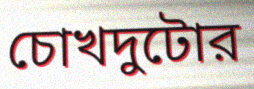
চোখদুটোর